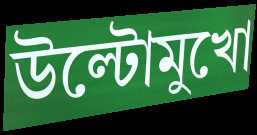
উল্টোমুখো